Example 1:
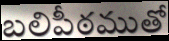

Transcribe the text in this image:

బలిపీఠముతో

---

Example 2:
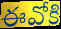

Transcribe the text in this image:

ఈవోకి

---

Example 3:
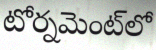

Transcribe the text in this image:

టోర్నమెంట్‌లో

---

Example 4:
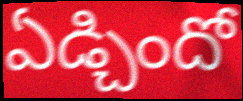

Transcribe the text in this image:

ఏడ్చిందో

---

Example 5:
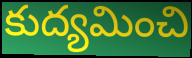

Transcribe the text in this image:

కుద్యమించి